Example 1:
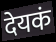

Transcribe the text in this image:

देयकं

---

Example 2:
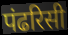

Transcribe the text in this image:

पंढरिसी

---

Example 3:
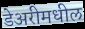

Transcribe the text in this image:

डेअरीमधील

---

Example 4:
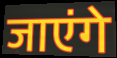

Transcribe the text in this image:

जाएंगे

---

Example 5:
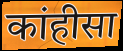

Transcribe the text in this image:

कांहीसा